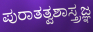
ಪುರಾತತ್ವಶಾಸ್ತ್ರಜ್ಞ